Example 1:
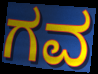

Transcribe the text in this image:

ಗವ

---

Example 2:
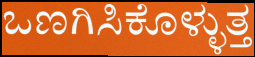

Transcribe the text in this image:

ಒಣಗಿಸಿಕೊಳ್ಳುತ್ತ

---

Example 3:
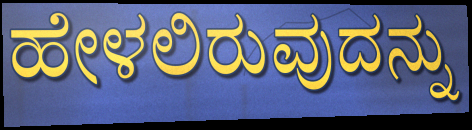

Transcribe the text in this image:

ಹೇಳಲಿರುವುದನ್ನು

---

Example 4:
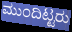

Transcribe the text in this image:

ಮುಂದಿಟ್ಟರು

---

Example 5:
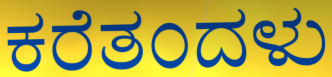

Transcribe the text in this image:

ಕರೆತಂದಳು